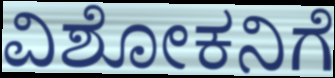
ವಿಶೋಕನಿಗೆ